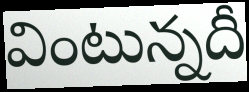
వింటున్నదీ